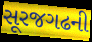
સૂરજગઢની